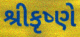
શ્રીકૃષ્ણે